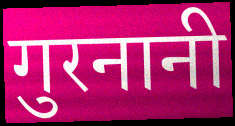
गुरनानी